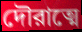
দৌরাত্মে